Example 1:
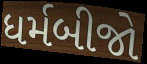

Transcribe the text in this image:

ધર્મબીજો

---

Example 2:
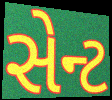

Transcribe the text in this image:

સેન્ટ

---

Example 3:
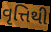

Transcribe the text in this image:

વૃત્તિથી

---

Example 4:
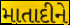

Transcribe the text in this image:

માતાદીને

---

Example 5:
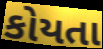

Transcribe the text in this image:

કોયતા